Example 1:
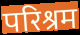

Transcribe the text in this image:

परिश्रम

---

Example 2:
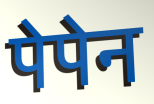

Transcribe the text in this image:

पेपेन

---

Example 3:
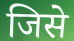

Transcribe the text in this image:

जिसे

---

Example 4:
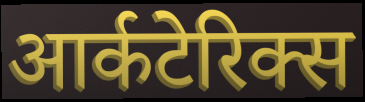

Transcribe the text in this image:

आर्कटेरिक्स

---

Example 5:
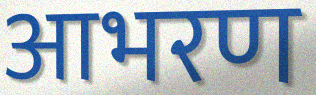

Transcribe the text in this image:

आभरण